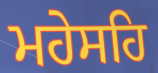
ਮਹੇਸਹਿ